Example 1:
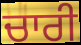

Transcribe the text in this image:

ਚਾਰੀ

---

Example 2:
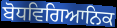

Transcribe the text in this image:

ਬੋਧਵਿਗਿਆਨਿਕ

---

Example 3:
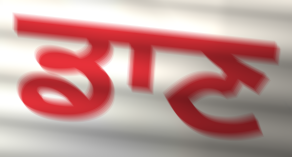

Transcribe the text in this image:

ਡਾਣ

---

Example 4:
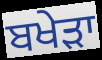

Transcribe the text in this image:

ਬਖੇੜਾ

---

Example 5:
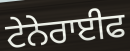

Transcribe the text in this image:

ਟੇਨੇਰਾਈਫ